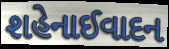
શહેનાઈવાદન